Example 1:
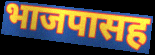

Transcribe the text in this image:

भाजपासह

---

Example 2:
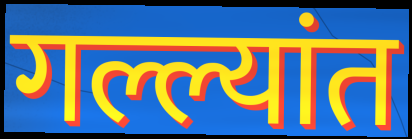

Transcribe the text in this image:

गल्ल्यांत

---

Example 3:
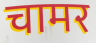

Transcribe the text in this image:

चामर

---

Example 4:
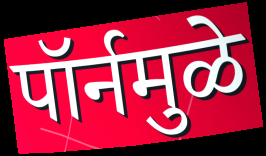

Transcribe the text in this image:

पॉर्नमुळे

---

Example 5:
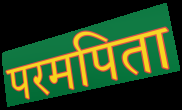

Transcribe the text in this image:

परमपिता